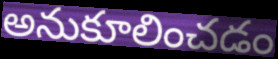
అనుకూలించడం